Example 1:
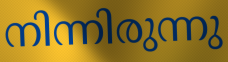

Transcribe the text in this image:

നിന്നിരുന്നു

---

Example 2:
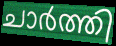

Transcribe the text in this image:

ചാർത്തി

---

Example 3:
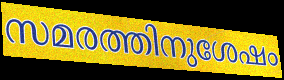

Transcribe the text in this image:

സമരത്തിനുശേഷം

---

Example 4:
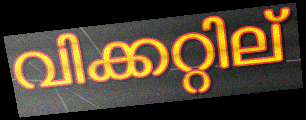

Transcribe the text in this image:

വിക്കറ്റില്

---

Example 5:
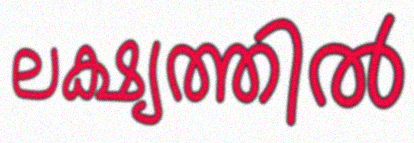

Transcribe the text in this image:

ലക്ഷ്യത്തിൽ